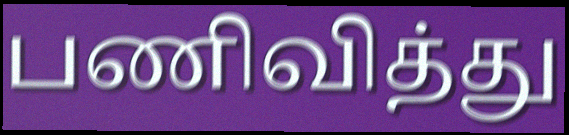
பணிவித்து